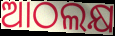
ଆଠଲକ୍ଷ